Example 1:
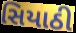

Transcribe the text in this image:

સિયાઠી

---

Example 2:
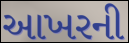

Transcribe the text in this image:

આખરની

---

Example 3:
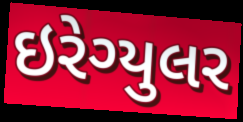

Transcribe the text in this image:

ઇરેગ્યુલર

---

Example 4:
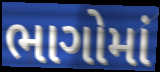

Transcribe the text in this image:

ભાગોમાં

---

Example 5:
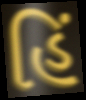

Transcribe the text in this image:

હિં